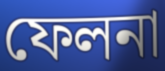
ফেলনা